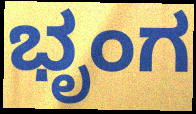
ಭೃಂಗ